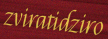
zviratidziro